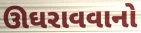
ઊઘરાવવાનો